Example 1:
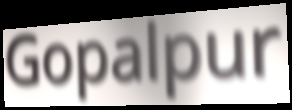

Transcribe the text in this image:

Gopalpur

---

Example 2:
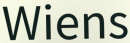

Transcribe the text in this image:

Wiens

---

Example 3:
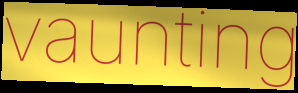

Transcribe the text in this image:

vaunting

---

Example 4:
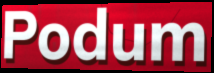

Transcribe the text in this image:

Podum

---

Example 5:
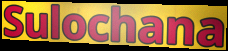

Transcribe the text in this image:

Sulochana